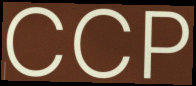
CCP